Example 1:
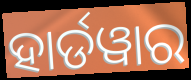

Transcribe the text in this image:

ହାର୍ଡୱାର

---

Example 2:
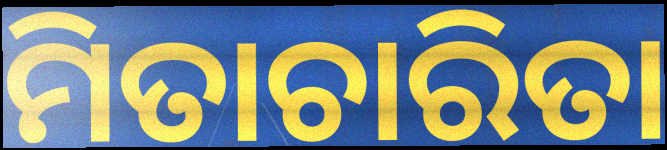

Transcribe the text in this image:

ମିତାଚାରିତା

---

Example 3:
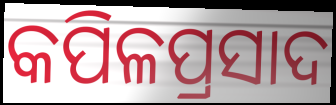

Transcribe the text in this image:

କପିଳପ୍ରସାଦ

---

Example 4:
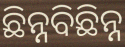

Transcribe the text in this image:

ଛିନ୍ନବିଛିନ୍ନ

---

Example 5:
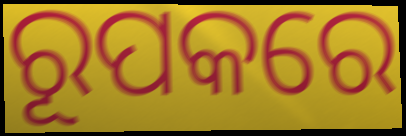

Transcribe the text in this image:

ରୂପକରେ